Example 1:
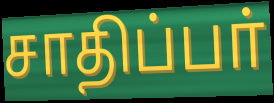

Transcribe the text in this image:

சாதிப்பர்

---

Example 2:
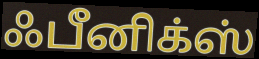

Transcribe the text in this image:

ஃபீனிக்ஸ்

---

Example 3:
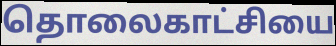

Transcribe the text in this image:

தொலைகாட்சியை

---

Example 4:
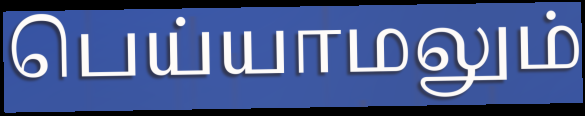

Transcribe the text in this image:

பெய்யாமலும்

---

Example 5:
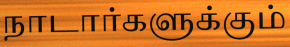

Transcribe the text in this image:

நாடார்களுக்கும்